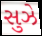
સુઝે